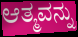
ಆತ್ಮವನ್ನು